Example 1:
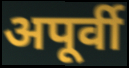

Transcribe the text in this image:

अपूर्वी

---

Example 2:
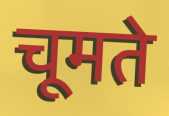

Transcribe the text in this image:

चूमते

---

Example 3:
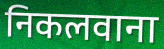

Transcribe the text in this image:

निकलवाना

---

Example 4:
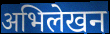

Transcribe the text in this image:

अभिलेखन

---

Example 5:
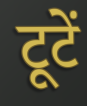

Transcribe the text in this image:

टूटें